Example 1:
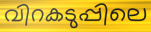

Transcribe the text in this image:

വിറകടുപ്പിലെ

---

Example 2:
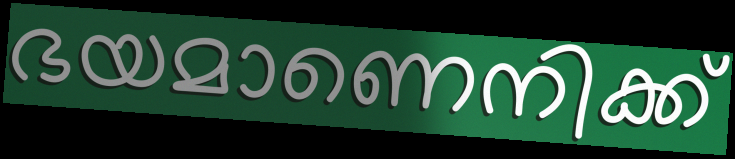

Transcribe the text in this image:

ഭയമാണെനിക്ക്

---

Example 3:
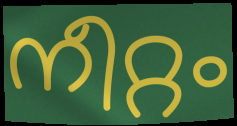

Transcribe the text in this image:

നീറ്റം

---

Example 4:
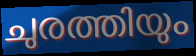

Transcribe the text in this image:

ചുരത്തിയും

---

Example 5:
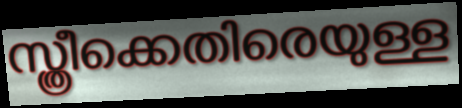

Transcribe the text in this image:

സ്ത്രീക്കെതിരെയുള്ള